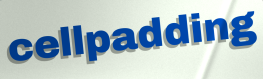
cellpadding